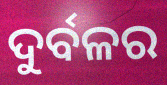
ଦୁର୍ବଳର